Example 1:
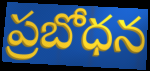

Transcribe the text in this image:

ప్రబోధన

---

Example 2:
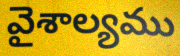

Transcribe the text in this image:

వైశాల్యము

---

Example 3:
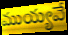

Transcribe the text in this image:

ముయ్యవే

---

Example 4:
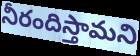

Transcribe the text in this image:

నీరందిస్తామని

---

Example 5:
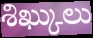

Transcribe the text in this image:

శిఖ్కులు